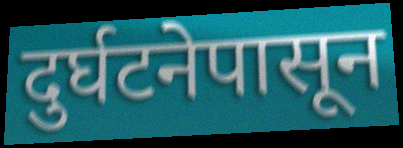
दुर्घटनेपासून